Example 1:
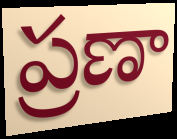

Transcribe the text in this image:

ప్రణా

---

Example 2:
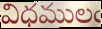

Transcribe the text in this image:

విధములఁ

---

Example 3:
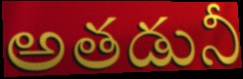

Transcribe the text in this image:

అతడునీ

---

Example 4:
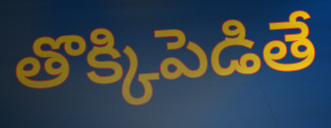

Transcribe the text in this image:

తొక్కిపెడితే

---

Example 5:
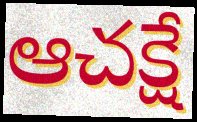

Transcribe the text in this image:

ఆచక్షే